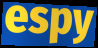
espy